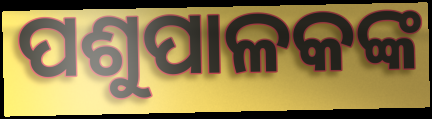
ପଶୁପାଳକଙ୍କ